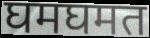
घमघमत